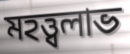
মহত্ত্বলাভ